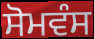
ਸੋਮਵੰਸ